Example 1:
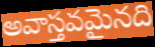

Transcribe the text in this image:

అవాస్తవమైనది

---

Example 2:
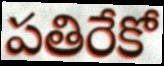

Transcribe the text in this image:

పతిరేకో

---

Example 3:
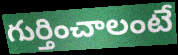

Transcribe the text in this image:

గుర్తించాలంటే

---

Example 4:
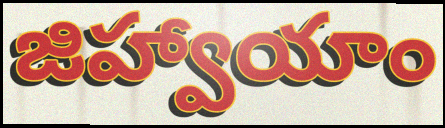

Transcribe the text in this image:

జిహ్వాయాం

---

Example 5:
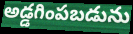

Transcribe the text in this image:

అడ్డగింపబడును